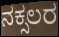
ನಕ್ಸಲರ